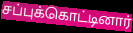
சப்புக்கொட்டினார்